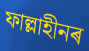
ফাল্লাহীনৰ